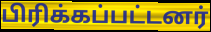
பிரிக்கப்பட்டனர்